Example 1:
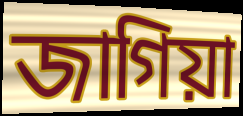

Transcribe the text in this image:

জাগিয়া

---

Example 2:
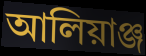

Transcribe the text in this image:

আলিয়াঞ্জ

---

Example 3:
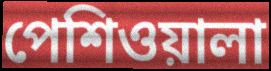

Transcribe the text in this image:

পেশিওয়ালা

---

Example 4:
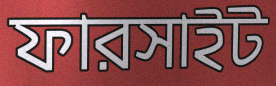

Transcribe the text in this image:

ফারসাইট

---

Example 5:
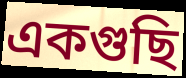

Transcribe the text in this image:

একগুছি